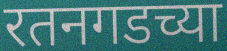
रतनगडच्या